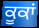
ਕੂਕਾਂ